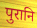
पुरानि